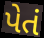
પેતં